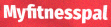
Myfitnesspal